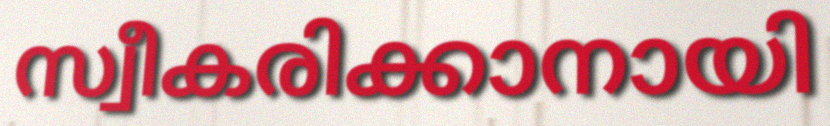
സ്വീകരിക്കാനായി